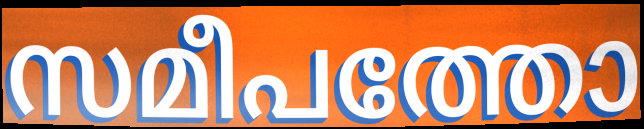
സമീപത്തോ